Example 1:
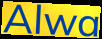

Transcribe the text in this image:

Alwa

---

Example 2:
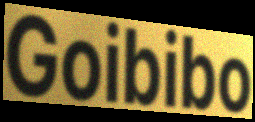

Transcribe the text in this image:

Goibibo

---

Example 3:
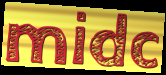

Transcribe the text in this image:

midc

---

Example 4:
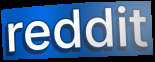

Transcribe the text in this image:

reddit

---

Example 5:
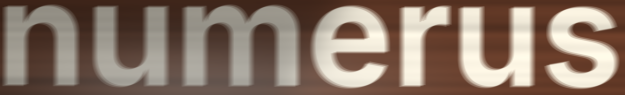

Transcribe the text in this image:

numerus